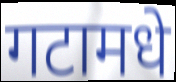
गटामधे